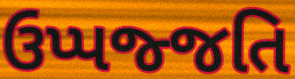
ઉપ્પજ્જતિ